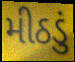
મીઠડું